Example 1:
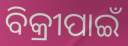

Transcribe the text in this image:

ବିକ୍ରୀପାଇଁ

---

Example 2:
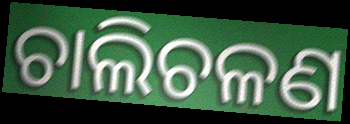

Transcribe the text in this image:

ଚାଲିଚଳଣ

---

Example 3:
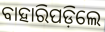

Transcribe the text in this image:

ବାହାରିପଡ଼ିଲେ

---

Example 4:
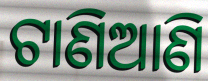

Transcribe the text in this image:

ଟାଣିଆଣି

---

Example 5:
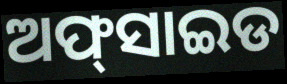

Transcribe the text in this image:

ଅଫ୍‍ସାଇଡ